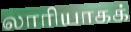
லாரியாகக்